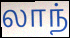
லாந்